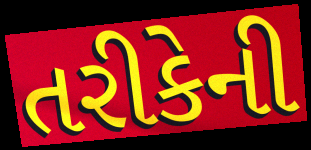
તરીકેની